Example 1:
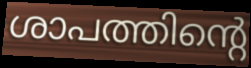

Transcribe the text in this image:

ശാപത്തിന്റെ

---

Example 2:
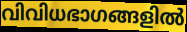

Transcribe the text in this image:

വിവിധഭാഗങ്ങളിൽ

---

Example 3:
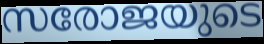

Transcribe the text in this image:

സരോജയുടെ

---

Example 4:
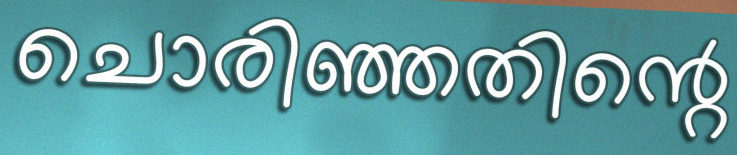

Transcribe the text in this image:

ചൊരിഞ്ഞതിന്റെ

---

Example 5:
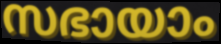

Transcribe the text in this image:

സഭായാം